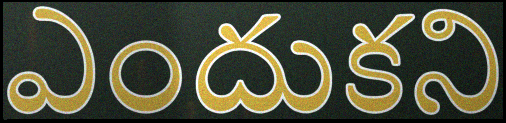
ఎందుకని